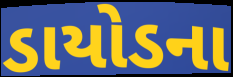
ડાયોડના